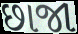
છાજા